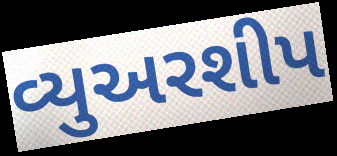
વ્યુઅરશીપ